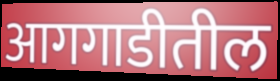
आगगाडीतील